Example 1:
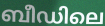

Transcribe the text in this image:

ബീഡിലെ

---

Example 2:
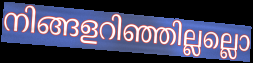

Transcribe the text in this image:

നിങ്ങളറിഞ്ഞില്ലല്ലൊ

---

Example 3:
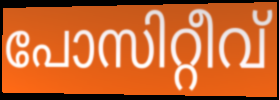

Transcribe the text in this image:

പോസിറ്റീവ്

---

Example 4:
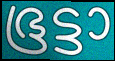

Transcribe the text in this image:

ഭൂട്ടാ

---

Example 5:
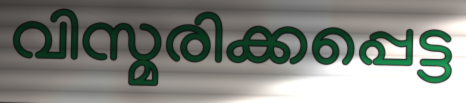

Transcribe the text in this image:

വിസ്മരിക്കപ്പെട്ട